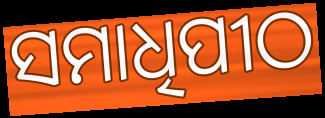
ସମାଧିପୀଠ